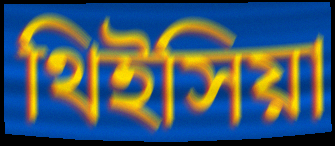
থিইসিয়া